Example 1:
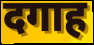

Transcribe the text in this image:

दगाह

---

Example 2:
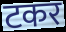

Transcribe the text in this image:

टकर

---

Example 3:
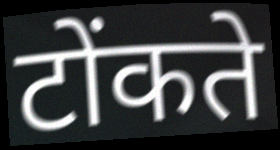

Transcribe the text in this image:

टोंकते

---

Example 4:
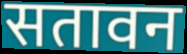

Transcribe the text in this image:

सतावन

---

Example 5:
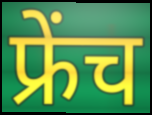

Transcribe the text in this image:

फ्रेंच